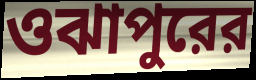
ওঝাপুরের